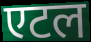
एटल